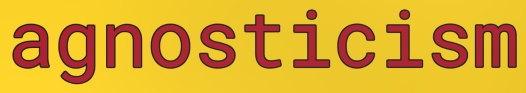
agnosticism